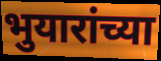
भुयारांच्या